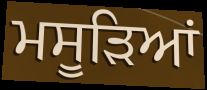
ਮਸੂੜਿਆਂ